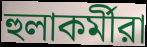
হুলাকর্মীরা